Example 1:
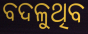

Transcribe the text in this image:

ବଦଳୁଥିବ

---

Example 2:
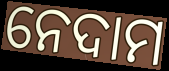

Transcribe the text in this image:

ନେଦାମ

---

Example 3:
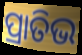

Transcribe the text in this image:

ପ୍ରାତିଭ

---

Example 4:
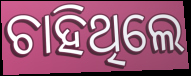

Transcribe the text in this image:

ଚାହିଥିଲେ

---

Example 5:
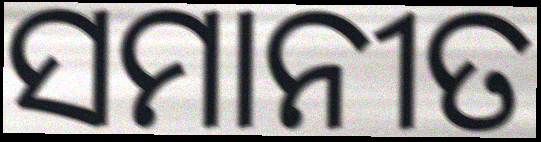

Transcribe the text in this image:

ସମାନୀତ